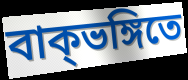
বাক্ভঙ্গিতে